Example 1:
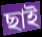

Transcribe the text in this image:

ছাই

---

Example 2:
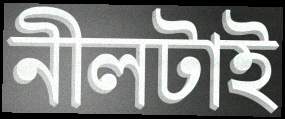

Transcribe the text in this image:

নীলটাই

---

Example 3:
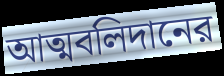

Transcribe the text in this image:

আত্মবলিদানের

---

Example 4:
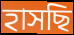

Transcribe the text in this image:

হাসছি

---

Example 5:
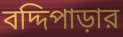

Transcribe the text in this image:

বদ্দিপাড়ার